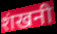
शंखनी